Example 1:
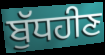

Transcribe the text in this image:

ਬੁੱਧਹੀਣ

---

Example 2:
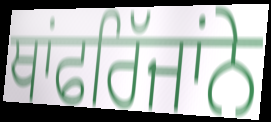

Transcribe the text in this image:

ਥਾਂਫਰਿੱਜਾਂਨੇ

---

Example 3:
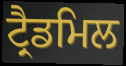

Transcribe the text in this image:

ਟ੍ਰੈਡਮਿਲ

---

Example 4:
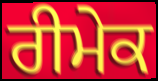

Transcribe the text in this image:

ਰੀਮੇਕ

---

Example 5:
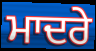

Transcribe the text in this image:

ਮਾਦਰੇ